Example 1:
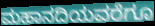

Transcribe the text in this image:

ಮಹಾನದಿಯವರೆಗೂ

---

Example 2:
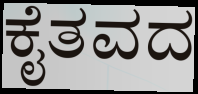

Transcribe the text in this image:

ಕೈತವದ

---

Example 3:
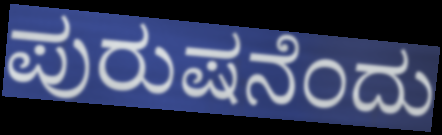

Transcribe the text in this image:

ಪುರುಷನೆಂದು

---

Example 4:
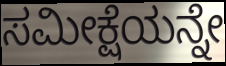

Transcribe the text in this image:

ಸಮೀಕ್ಷೆಯನ್ನೇ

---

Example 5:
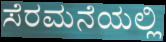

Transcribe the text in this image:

ಸೆರಮನೆಯಲ್ಲಿ